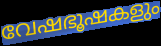
വേഷഭൂഷകളും